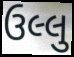
ઉલ્લુ